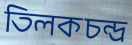
তিলকচন্দ্র